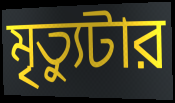
মৃত্যুটার